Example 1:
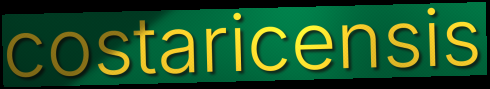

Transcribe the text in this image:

costaricensis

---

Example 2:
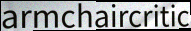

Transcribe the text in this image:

armchaircritic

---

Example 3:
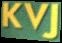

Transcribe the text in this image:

KVJ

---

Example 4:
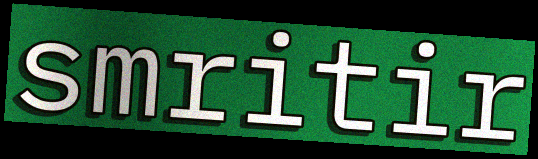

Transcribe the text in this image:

smritir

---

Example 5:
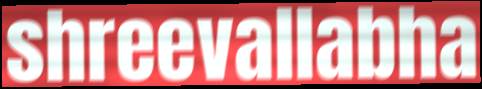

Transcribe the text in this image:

shreevallabha